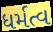
ધર્મત્વ